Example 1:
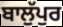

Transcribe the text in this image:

ਬਾਲੁੱਪੁਰ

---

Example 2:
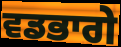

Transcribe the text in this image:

ਵਡਭਾਗੇ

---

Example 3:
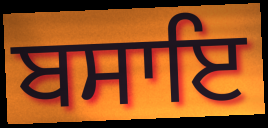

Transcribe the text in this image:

ਬਸਾਇ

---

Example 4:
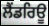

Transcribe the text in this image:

ਲੈਂਡਰਿਊ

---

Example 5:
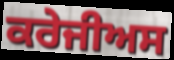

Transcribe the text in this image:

ਕਰੇਜੀਅਸ